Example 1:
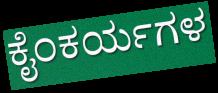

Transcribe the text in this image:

ಕೈಂಕರ್ಯಗಳ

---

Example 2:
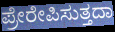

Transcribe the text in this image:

ಪ್ರೇರೇಪಿಸುತ್ತದಾ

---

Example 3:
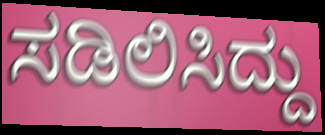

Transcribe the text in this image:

ಸಡಿಲಿಸಿದ್ದು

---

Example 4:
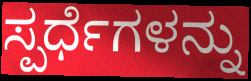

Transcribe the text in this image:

ಸ್ಪರ್ಧೆಗಳನ್ನು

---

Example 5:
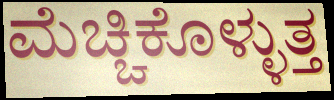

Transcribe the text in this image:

ಮೆಚ್ಚಿಕೊಳ್ಳುತ್ತ